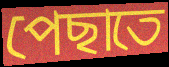
পেছাতে